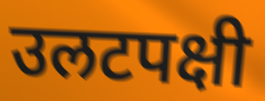
उलटपक्षी